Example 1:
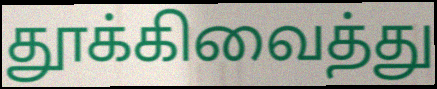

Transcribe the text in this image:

தூக்கிவைத்து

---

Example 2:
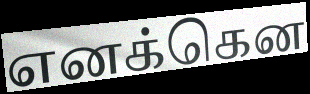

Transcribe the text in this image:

எனக்கென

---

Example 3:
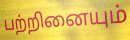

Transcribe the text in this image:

பற்றினையும்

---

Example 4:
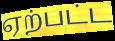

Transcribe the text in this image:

ஏற்பட்ட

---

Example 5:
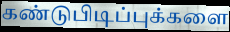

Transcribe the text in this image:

கண்டுபிடிப்புக்களை